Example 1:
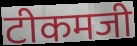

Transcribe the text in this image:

टीकमजी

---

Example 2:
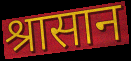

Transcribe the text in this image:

श्रासान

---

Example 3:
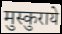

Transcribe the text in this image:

मुस्कुराये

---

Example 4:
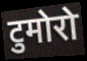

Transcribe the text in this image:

टुमोरो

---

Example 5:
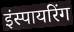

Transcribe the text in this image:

इंस्पायरिंग